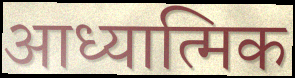
आध्यात्मिक